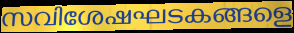
സവിശേഷഘടകങ്ങളെ